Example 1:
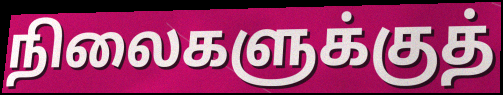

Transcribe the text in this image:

நிலைகளுக்குத்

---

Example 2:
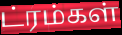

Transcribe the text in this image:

ட்ரம்கள்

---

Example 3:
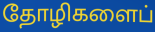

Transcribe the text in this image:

தோழிகளைப்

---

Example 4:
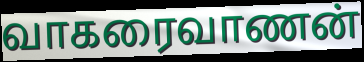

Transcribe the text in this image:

வாகரைவாணன்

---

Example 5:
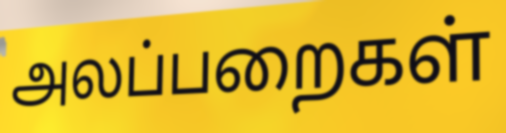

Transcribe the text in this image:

அலப்பறைகள்